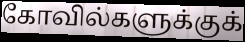
கோவில்களுக்குக்